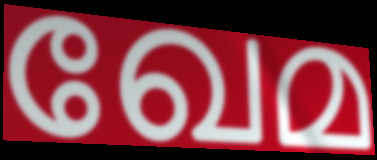
ഖേമ